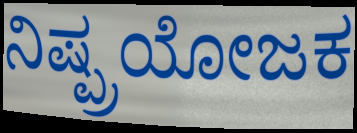
ನಿಷ್ಪ್ರಯೋಜಕ